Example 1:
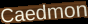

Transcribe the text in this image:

Caedmon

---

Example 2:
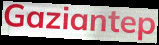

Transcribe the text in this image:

Gaziantep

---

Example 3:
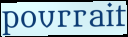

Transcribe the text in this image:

pourrait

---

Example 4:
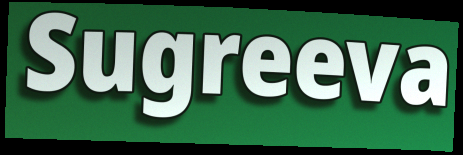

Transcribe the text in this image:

Sugreeva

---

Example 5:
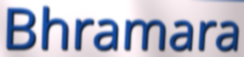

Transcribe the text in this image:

Bhramara